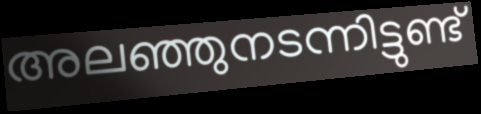
അലഞ്ഞുനടന്നിട്ടുണ്ട്